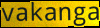
vakanga